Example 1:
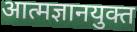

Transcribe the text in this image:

आत्मज्ञानयुक्त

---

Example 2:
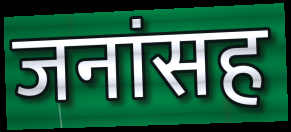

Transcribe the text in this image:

जनांसह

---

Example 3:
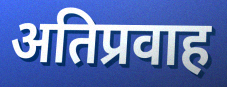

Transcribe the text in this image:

अतिप्रवाह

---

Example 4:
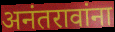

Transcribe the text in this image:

अनंतरावांना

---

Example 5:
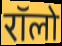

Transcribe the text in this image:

रॉलो